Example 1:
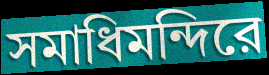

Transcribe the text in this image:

সমাধিমন্দিরে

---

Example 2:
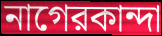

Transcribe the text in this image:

নাগেরকান্দা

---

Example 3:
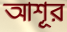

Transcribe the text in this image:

আশূর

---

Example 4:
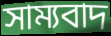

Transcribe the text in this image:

সাম্যবাদ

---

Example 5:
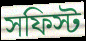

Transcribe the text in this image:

সফিস্ট